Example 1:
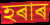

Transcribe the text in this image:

হৰাৰ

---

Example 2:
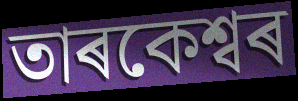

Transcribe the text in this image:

তাৰকেশ্বৰ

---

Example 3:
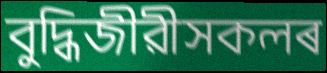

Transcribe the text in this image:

বুদ্ধিজীৱীসকলৰ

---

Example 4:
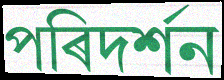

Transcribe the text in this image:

পৰিদৰ্শন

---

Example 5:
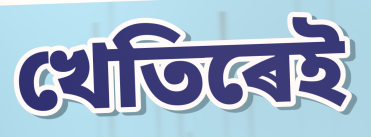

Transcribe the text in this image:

খেতিৰেই